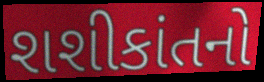
શશીકાંતનો